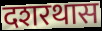
दशरथास